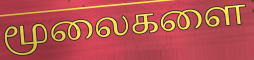
மூலைகளை